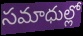
సమాధుల్లో